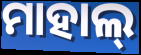
ମାହାଲ୍